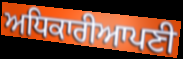
ਅਧਿਕਾਰੀਆਪਣੀ